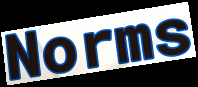
Norms